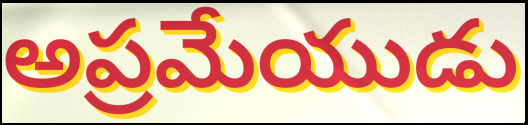
అప్రమేయుడు